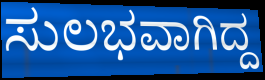
ಸುಲಭವಾಗಿದ್ದ